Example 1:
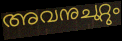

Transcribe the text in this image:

അവനുചുറ്റും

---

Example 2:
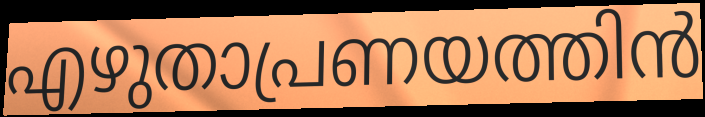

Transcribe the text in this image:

എഴുതാപ്രണയത്തിൻ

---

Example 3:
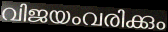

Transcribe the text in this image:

വിജയംവരിക്കും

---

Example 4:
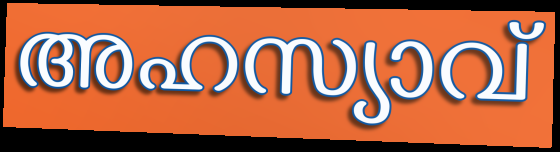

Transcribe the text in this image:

അഹസ്യാവ്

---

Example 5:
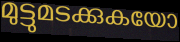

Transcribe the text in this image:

മുട്ടുമടക്കുകയോ